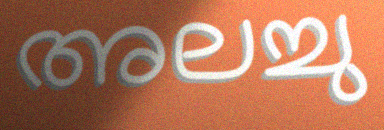
അലച്ചു